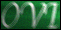
OVI